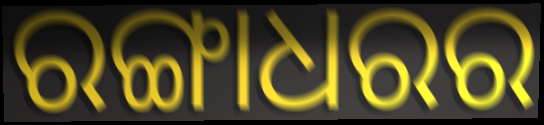
ରଙ୍ଗାଧରର